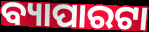
ବ୍ୟାପାରଟା